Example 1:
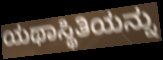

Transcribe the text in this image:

ಯಥಾಸ್ಥಿತಿಯನ್ನು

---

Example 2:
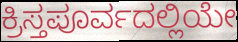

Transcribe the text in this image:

ಕ್ರಿಸ್ತಪೂರ್ವದಲ್ಲಿಯೇ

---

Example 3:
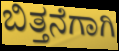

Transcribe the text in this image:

ಬಿತ್ತನೆಗಾಗಿ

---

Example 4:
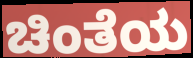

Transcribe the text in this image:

ಚಿಂತೆಯ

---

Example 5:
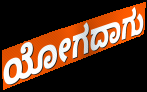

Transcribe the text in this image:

ಯೋಗದಾಗು